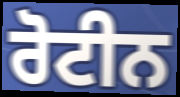
ਰੋਟੀਨ